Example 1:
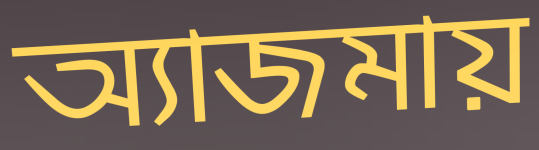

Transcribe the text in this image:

অ্যাজমায়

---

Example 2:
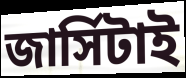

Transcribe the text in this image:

জার্সিটাই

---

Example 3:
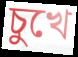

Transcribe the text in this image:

চুখে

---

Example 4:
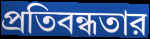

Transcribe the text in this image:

প্রতিবন্ধতার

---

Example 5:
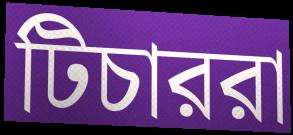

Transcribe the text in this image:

টিচাররা